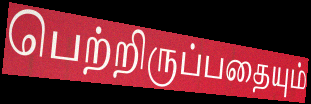
பெற்றிருப்பதையும்